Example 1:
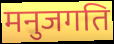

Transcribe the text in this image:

मनुजगति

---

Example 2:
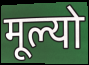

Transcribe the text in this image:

मूल्यो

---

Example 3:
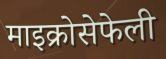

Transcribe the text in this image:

माइक्रोसेफेली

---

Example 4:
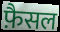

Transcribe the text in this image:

फ़ैसल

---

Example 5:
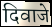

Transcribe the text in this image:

दिवाजे